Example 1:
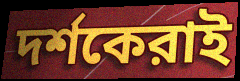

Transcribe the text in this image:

দর্শকেরাই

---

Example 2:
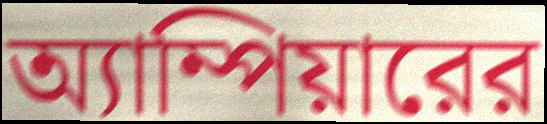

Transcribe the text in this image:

অ্যাম্পিয়ারের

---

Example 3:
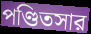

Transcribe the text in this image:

পণ্ডিতসার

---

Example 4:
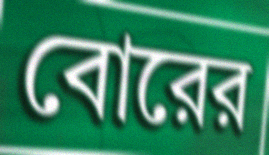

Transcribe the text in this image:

বোরের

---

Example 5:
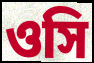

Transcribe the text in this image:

ওসি